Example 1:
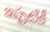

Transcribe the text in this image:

ఇప్పటికీ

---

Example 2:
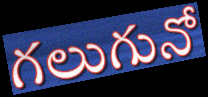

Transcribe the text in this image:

గలుగునో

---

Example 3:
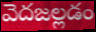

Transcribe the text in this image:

వెదజల్లడం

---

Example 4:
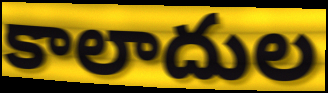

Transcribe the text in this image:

కాలాదుల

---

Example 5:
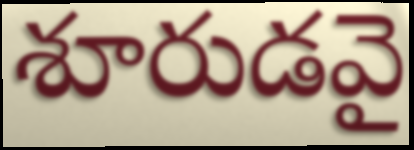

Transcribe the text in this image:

శూరుడవై